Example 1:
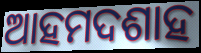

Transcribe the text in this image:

ଆହମଦଶାହ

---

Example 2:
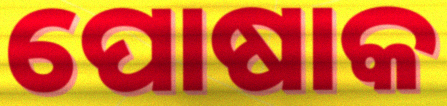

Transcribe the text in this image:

ପୋଷାକ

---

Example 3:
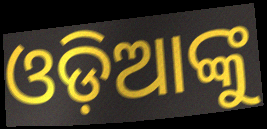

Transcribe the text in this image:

ଓଡ଼ିଆଙ୍କୁ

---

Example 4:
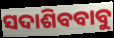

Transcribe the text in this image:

ସଦାଶିବବାବୁ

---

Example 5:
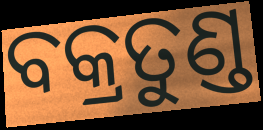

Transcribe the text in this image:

ବକ୍ରତୁଣ୍ଡ